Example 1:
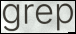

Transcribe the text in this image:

grep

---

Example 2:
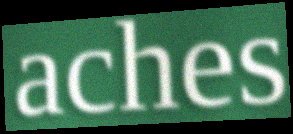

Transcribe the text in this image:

aches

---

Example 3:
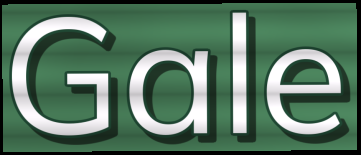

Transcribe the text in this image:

Gale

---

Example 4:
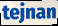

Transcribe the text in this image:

tejnan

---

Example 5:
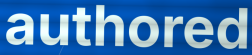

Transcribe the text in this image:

authored